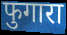
फुगारा